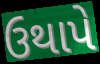
ઉથાપે